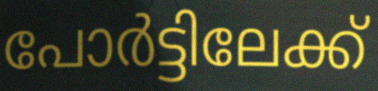
പോർട്ടിലേക്ക്